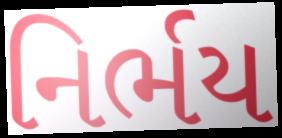
નિર્ભય